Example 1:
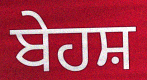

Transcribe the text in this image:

ਬੇਹਸ਼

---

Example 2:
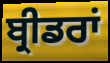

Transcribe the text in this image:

ਬ੍ਰੀਡਰਾਂ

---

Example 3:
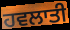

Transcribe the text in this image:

ਹਵਲਾਤੀ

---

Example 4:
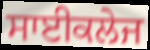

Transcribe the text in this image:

ਸਾਈਕਲੇਜ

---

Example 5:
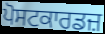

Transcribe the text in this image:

ਪੋਸਟਕਾਰਡਜ਼